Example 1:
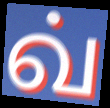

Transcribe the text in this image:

வ்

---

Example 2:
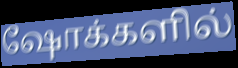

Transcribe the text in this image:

ஷோக்களில்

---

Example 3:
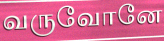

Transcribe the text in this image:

வருவோனே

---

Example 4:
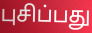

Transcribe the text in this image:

புசிப்பது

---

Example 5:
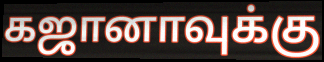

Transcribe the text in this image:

கஜானாவுக்கு